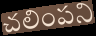
చలింపని